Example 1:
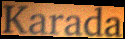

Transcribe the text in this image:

Karada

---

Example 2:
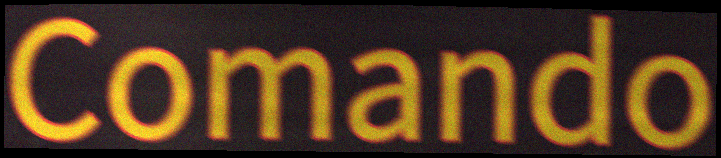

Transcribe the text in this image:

Comando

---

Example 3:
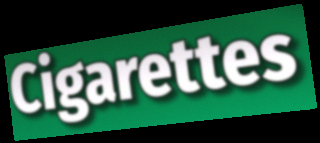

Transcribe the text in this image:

Cigarettes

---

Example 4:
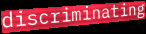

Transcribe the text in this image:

discriminating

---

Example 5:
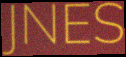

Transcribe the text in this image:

JNES